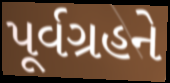
પૂર્વગ્રહને